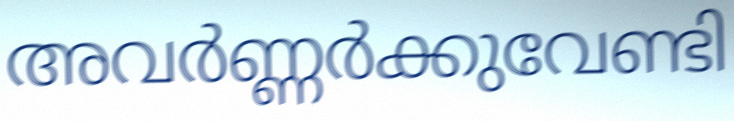
അവർണ്ണർക്കുവേണ്ടി